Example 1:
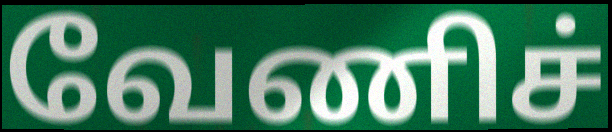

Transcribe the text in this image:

வேணிச்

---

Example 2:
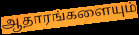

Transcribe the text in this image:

ஆதாரங்களையும்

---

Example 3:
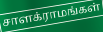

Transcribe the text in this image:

சாளக்ராமங்கள்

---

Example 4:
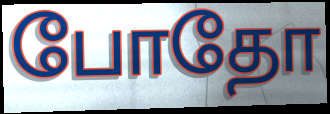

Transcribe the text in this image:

போதோ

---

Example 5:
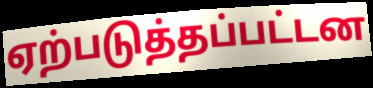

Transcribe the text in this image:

ஏற்படுத்தப்பட்டன